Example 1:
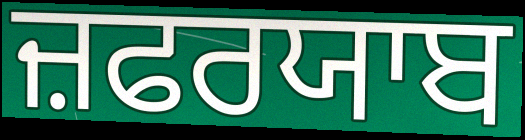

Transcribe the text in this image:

ਜ਼ਫਰਯਾਬ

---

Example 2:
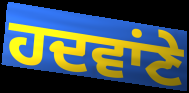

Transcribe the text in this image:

ਹਦਵਾਂਣੇ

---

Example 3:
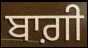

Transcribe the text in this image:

ਬਾਗ਼ੀ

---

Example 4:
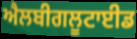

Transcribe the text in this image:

ਐਲਬੀਗਲੂਟਾਈਡ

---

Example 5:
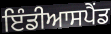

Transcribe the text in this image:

ਇੰਡੀਆਸਪੈਂਡ